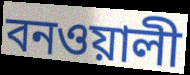
বনওয়ালী